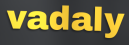
vadaly